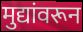
मुद्यांवरून